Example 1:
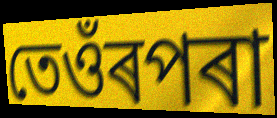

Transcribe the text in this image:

তেওঁৰপৰা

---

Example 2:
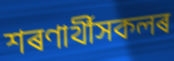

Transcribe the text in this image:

শৰণাৰ্থীসকলৰ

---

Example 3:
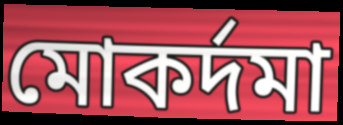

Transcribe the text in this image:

মোকৰ্দমা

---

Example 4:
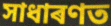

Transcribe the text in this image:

সাধাৰণত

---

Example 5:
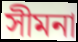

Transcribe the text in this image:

সীমনা